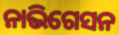
ନାଭିଗେସନ